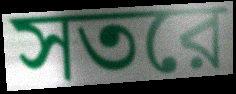
সতরে